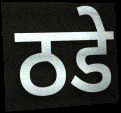
ठडे